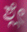
ಶ್ಲೇ